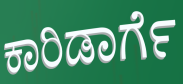
ಕಾರಿಡಾರ್ಗೆ